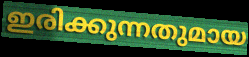
ഇരിക്കുന്നതുമായ